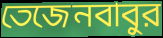
তেজেনবাবুর